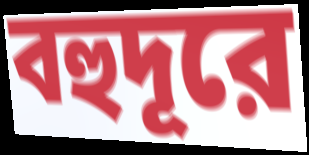
বহুদূরে